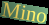
Mino